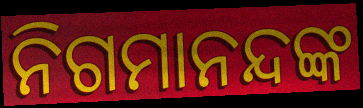
ନିଗମାନନ୍ଦଙ୍କ